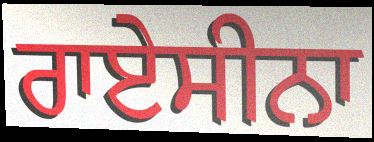
ਰਾਏਸੀਨਾ